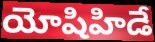
యోషిహిడే